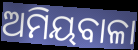
ଅମିୟବାଳା